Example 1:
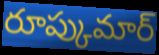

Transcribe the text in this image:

రూప్కుమార్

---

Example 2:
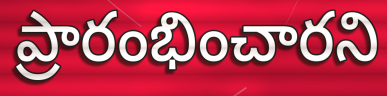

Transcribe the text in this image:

ప్రారంభించారని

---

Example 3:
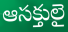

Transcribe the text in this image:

ఆసక్తులై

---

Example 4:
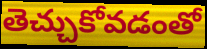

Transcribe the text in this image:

తెచ్చుకోవడంతో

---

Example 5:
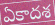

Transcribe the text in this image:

ఏకాదశ